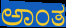
ಅಾಂತ